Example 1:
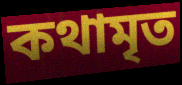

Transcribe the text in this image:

কথামৃত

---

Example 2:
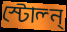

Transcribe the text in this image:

স্টোল্ন্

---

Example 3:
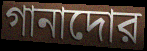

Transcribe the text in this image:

গানাদোর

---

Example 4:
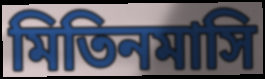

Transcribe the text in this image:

মিতিনমাসি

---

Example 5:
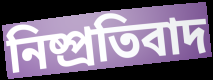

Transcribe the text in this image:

নিষ্প্রতিবাদ